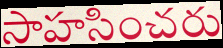
సాహసించరు